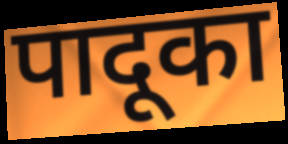
पादूका